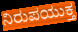
ನಿರುಪಯುಕ್ತ